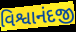
વિશ્વાનંદજી